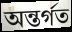
অন্তৰ্গত